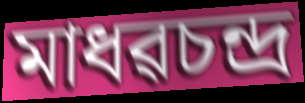
মাধৱচন্দ্ৰ